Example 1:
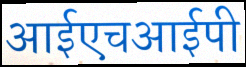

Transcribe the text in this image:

आईएचआईपी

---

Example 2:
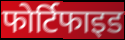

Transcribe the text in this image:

फोर्टिफाइड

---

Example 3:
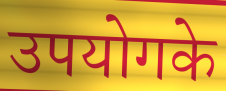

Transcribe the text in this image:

उपयोगके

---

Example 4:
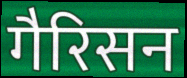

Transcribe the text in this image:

गैरिसन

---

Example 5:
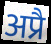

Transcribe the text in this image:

अप्रै